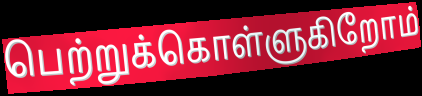
பெற்றுக்கொள்ளுகிறோம்